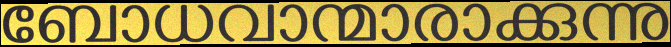
ബോധവാന്മാരാക്കുന്നു